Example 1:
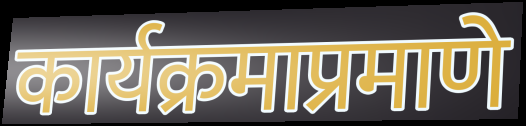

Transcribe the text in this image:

कार्यक्रमाप्रमाणे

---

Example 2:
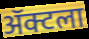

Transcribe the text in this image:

ॲक्टला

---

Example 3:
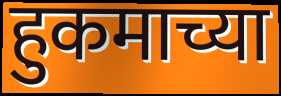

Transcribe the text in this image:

हुकमाच्या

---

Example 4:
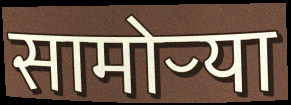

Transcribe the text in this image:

सामोऱ्या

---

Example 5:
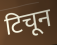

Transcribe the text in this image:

टिचून